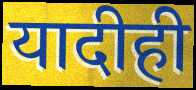
यादीही